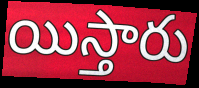
యిస్తారు